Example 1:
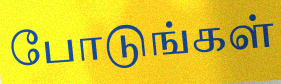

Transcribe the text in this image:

போடுங்கள்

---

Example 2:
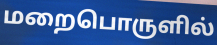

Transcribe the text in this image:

மறைபொருளில்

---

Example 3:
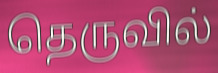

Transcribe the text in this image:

தெருவில்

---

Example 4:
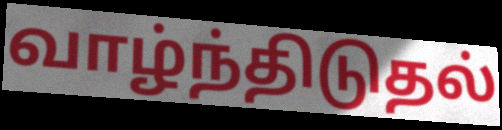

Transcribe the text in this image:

வாழ்ந்திடுதல்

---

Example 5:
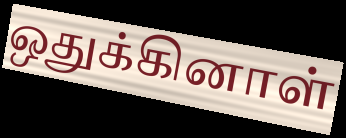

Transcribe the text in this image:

ஒதுக்கினாள்